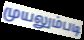
முயலும்படி